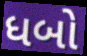
ધબો